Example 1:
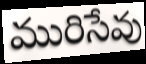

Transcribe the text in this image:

మురిసేవు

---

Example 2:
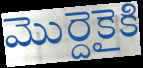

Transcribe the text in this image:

మొర్దెకైకి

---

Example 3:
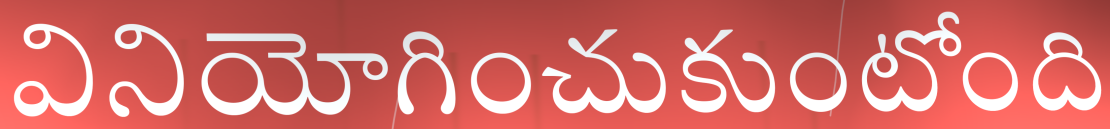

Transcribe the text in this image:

వినియోగించుకుంటోంది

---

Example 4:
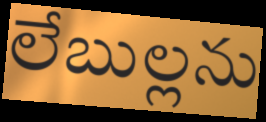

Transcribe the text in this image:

లేబుల్లను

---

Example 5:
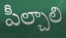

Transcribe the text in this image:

పీల్చాలి